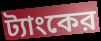
ট্যাংকের